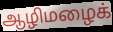
ஆழிமழைக்